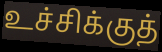
உச்சிக்குத்